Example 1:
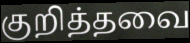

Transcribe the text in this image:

குறித்தவை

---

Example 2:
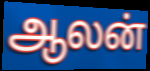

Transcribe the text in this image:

ஆலன்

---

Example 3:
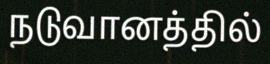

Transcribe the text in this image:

நடுவானத்தில்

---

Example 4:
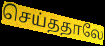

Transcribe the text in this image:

செய்ததாலே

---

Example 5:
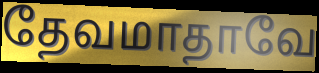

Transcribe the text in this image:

தேவமாதாவே